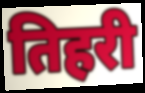
तिहरी